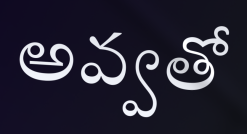
అవ్వతో